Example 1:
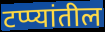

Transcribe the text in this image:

टप्प्यांतील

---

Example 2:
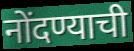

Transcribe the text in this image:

नोंदण्याची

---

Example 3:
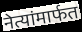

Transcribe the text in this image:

नेत्यांमार्फत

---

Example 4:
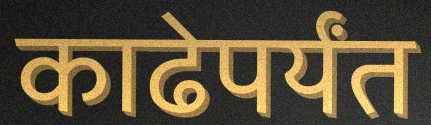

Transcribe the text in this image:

काढेपर्यंत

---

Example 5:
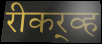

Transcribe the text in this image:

रीकर्व्ह